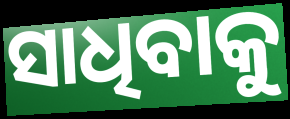
ସାଧିବାକୁ